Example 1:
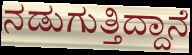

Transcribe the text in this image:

ನಡುಗುತ್ತಿದ್ದಾನೆ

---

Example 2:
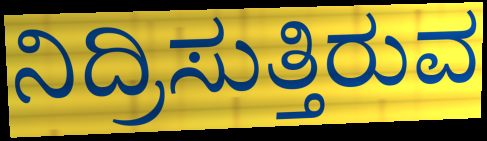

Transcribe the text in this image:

ನಿದ್ರಿಸುತ್ತಿರುವ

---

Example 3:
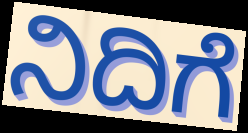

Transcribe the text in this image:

ನಿದಿಗೆ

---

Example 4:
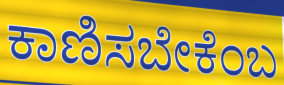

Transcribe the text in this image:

ಕಾಣಿಸಬೇಕೆಂಬ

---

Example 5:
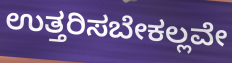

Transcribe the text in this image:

ಉತ್ತರಿಸಬೇಕಲ್ಲವೇ